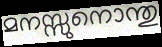
മനസ്സുനൊന്തു